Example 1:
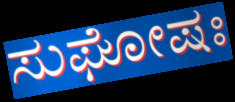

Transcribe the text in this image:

ಸುಘೋಷಃ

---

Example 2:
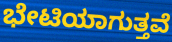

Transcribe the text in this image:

ಭೇಟಿಯಾಗುತ್ತವೆ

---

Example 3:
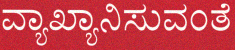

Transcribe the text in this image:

ವ್ಯಾಖ್ಯಾನಿಸುವಂತೆ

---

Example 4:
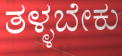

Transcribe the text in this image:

ತಳ್ಳಬೇಕು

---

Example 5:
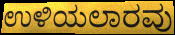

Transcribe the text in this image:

ಉಳಿಯಲಾರವು